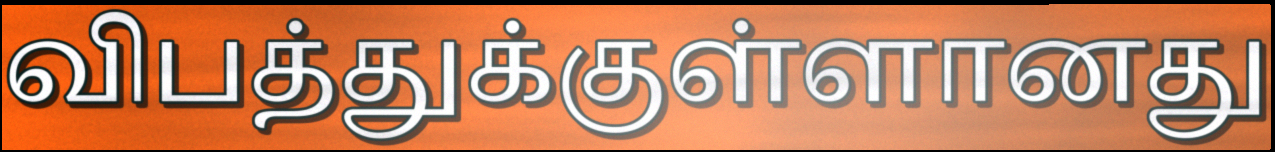
விபத்துக்குள்ளானது